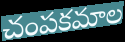
చంపకమాల